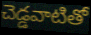
చెడ్డవాటితో